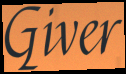
Giver